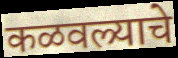
कळवल्याचे